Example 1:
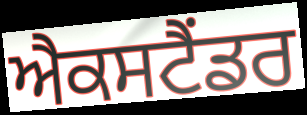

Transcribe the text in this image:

ਐਕਸਟੈਂਡਰ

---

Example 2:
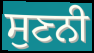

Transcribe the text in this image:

ਸੁਣਨੀ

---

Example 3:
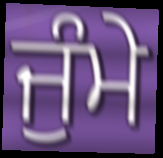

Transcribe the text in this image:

ਜੁੰਮੇ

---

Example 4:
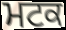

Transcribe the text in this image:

ਮਟਕ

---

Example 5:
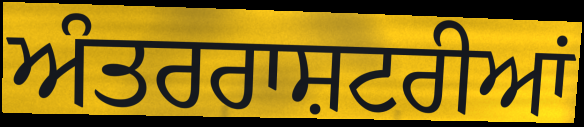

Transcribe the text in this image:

ਅੰਤਰਰਾਸ਼ਟਰੀਆਂ